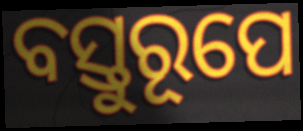
ବସ୍ତୁରୂପେ